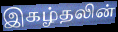
இகழ்தலின்